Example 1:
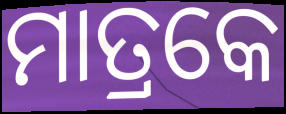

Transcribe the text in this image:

ମାତ୍ରକେ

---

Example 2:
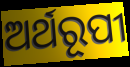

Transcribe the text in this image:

ଅର୍ଥରୂପୀ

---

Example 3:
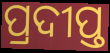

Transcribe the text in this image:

ପ୍ରଦୀପ୍ତ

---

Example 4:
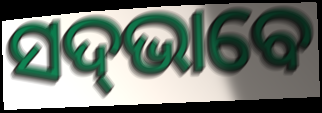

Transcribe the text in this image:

ସଦ୍‌ଭାବେ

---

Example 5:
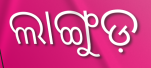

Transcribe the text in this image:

ଲାଙ୍ଗୁଡ଼